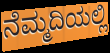
ನೆಮ್ಮದಿಯಲ್ಲಿ